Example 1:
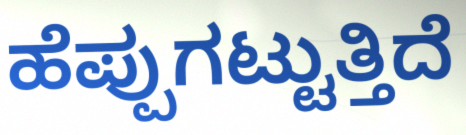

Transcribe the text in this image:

ಹೆಪ್ಪುಗಟ್ಟುತ್ತಿದೆ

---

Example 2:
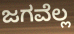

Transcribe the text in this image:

ಜಗವೆಲ್ಲ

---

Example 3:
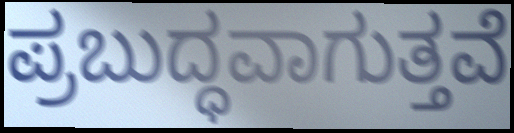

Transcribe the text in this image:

ಪ್ರಬುದ್ಧವಾಗುತ್ತವೆ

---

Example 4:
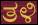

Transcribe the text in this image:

ತಳಿ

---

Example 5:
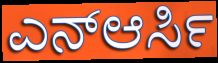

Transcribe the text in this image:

ಎನ್ಆರ್ಸಿ